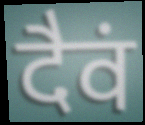
दैवं